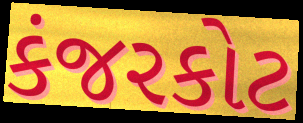
કંજરકોટ